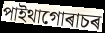
পাইথাগোৰাচৰ